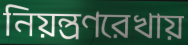
নিয়ন্ত্রণরেখায়